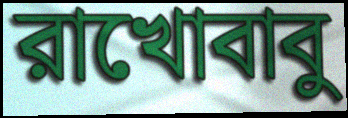
রাখোবাবু